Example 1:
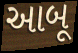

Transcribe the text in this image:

આબૂ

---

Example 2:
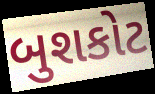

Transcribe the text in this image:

બુશકોટ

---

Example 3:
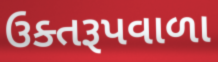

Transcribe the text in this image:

ઉક્તરૂપવાળા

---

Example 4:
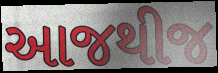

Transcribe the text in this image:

આજથીજ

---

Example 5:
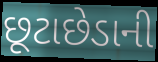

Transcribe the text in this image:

છૂટાછેડાની